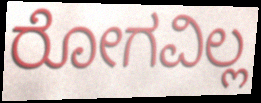
ರೋಗವಿಲ್ಲ